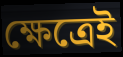
ক্ষেত্ৰেই